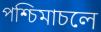
পশ্চিমাচলে